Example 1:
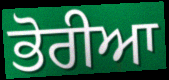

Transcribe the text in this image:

ਭੋਰੀਆ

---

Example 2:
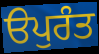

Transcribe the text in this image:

ੳਪੁਰੰਤ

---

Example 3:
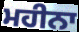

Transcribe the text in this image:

ਮਹੀਨਾ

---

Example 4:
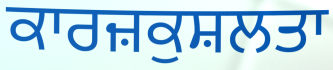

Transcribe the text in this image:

ਕਾਰਜ਼ਕੁਸ਼ਲਤਾ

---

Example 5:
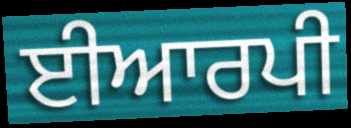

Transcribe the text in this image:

ਈਆਰਪੀ